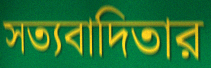
সত্যবাদিতার